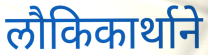
लौकिकार्थाने